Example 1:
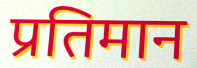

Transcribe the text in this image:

प्रतिमान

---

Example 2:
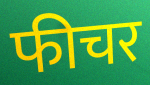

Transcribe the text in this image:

फीचर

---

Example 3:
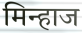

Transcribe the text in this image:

मिन्हाज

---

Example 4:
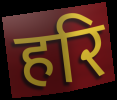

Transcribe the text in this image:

हरि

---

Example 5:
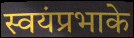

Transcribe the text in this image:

स्वयंप्रभाके